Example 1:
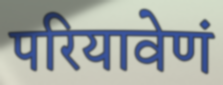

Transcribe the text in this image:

परियावेणं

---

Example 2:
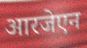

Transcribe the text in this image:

आरजेएन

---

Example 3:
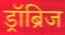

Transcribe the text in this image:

ड्रॉब्रिज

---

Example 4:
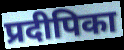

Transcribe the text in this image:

प्रदीपिका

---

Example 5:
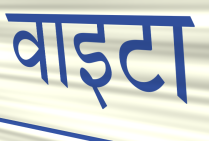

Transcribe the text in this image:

वाइटा